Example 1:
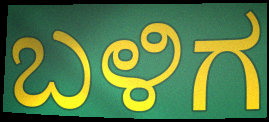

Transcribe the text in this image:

ಬಳಿಗ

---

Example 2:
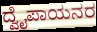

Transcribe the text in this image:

ದ್ವೈಪಾಯನರ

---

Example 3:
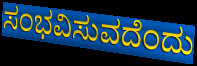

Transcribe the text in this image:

ಸಂಭವಿಸುವದೆಂದು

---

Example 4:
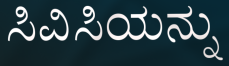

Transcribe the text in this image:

ಸಿವಿಸಿಯನ್ನು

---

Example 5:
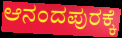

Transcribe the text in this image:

ಆನಂದಪುರಕ್ಕೆ